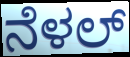
ನೆಳಲ್